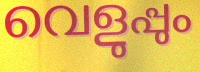
വെളുപ്പും